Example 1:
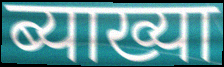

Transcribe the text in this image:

ब्याख्या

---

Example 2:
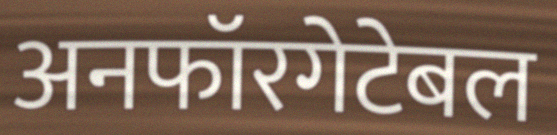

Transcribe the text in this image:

अनफॉरगेटेबल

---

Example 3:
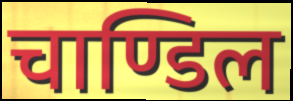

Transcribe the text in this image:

चाण्डिल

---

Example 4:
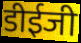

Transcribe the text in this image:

डीईजी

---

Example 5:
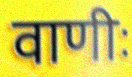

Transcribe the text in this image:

वाणीः